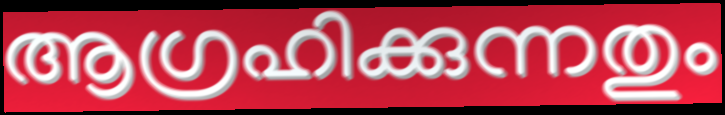
ആഗ്രഹിക്കുന്നതും